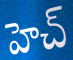
హెచ్